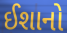
ઈશાનો